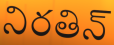
నిరతిన్